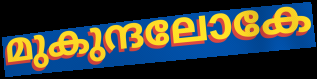
മുകുന്ദലോകേ